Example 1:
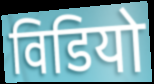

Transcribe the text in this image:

विडियो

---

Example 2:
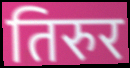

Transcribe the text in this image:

तिरुर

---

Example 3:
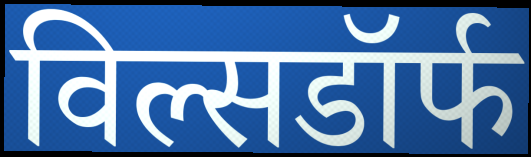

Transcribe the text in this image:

विल्सडॉर्फ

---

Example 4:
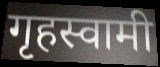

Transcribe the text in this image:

गृहस्वामी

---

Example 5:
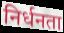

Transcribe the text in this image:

निर्धनता